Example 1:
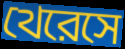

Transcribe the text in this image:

থেরেসে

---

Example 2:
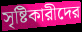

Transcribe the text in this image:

সৃষ্টিকারীদের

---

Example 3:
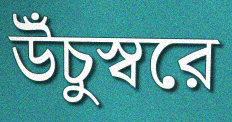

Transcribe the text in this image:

উঁচুস্বরে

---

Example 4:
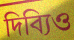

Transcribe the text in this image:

দিব্যিও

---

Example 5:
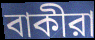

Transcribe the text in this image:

বাকীরা